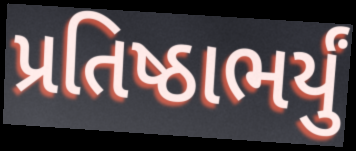
પ્રતિષ્ઠાભર્યું